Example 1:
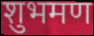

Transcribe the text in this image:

शुभमण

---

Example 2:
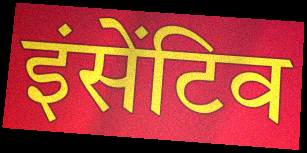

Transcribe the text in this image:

इंसेंटिव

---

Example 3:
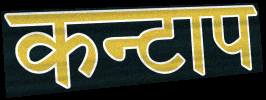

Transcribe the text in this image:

कन्टाप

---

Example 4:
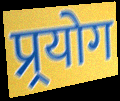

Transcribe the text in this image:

प्र्रयोग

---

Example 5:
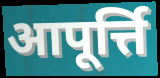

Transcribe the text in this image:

आपूर्त्ति